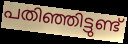
പതിഞ്ഞിട്ടുണ്ട്